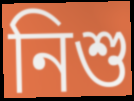
নিশু